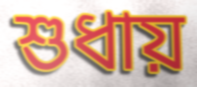
শুধায়